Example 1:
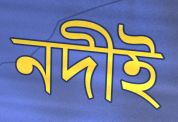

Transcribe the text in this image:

নদীই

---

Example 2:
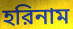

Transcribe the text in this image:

হরিনাম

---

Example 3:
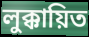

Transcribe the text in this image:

লুক্কায়িত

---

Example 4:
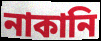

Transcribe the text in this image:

নাকানি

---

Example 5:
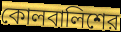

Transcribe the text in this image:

কোলবালিশের